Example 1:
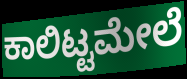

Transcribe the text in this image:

ಕಾಲಿಟ್ಟಮೇಲೆ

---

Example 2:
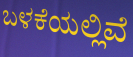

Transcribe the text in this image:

ಬಳಕೆಯಲ್ಲಿವೆ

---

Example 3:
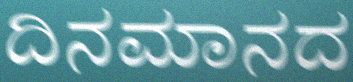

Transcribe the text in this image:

ದಿನಮಾನದ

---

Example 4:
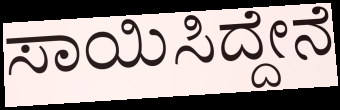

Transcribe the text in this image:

ಸಾಯಿಸಿದ್ದೇನೆ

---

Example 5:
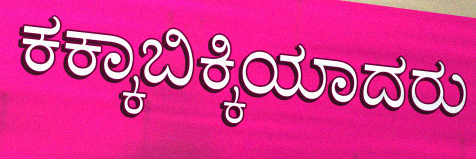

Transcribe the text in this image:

ಕಕ್ಕಾಬಿಕ್ಕಿಯಾದರು